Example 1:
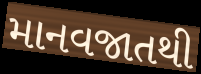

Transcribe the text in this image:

માનવજાતથી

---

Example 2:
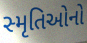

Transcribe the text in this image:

સ્મૃતિઓનો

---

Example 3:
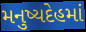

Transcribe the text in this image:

મનુષ્યદેહમાં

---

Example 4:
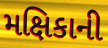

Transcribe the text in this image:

મક્ષિકાની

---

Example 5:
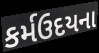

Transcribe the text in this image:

કર્મઉદયના